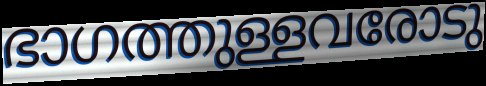
ഭാഗത്തുള്ളവരോടു